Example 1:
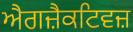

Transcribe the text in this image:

ਐਗਜ਼ੈਕਟਿਵਜ਼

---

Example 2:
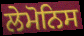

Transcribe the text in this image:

ਲੇਮੋਨਿਸ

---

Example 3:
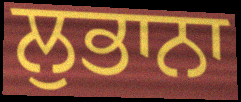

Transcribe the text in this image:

ਲੁਭਾਨਾ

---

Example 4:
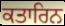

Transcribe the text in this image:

ਕਤਾਰਿਨ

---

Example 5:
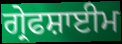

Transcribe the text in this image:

ਗ੍ਰੇਫਸ਼ਾਈਮ